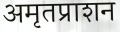
अमृतप्राशन